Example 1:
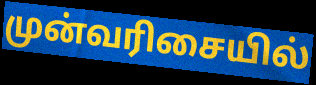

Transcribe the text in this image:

முன்வரிசையில்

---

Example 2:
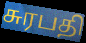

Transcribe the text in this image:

சுரபதி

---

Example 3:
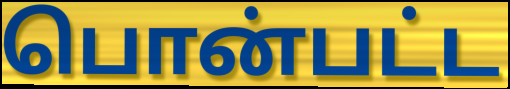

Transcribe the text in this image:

பொன்பட்ட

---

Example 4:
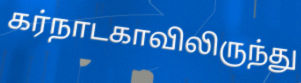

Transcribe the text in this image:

கர்நாடகாவிலிருந்து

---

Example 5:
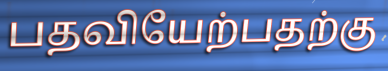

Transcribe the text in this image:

பதவியேற்பதற்கு